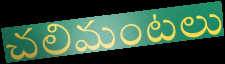
చలిమంటలు